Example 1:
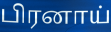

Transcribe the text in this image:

பிரனாய்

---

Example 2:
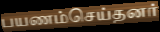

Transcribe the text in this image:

பயணம்செய்தனர்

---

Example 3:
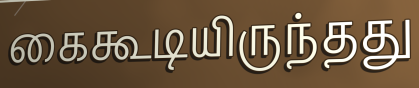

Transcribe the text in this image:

கைகூடியிருந்தது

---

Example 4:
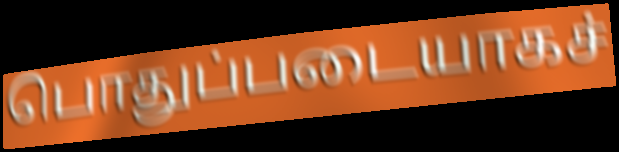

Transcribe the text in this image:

பொதுப்படையாகச்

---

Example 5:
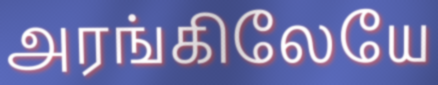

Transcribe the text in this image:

அரங்கிலேயே